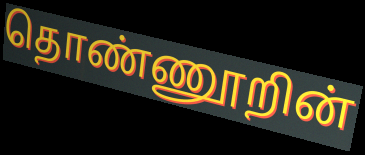
தொண்ணூறின்